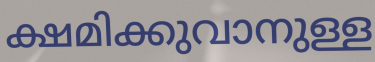
ക്ഷമിക്കുവാനുള്ള